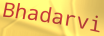
Bhadarvi